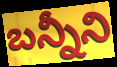
బన్నీని